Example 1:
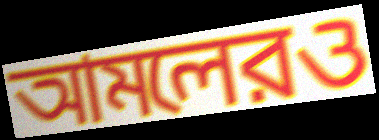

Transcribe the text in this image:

আমলেরও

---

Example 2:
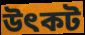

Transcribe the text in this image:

উৎকট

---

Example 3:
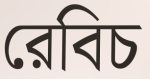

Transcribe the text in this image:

রেবিচ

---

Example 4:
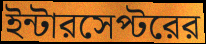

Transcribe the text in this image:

ইন্টারসেপ্টরের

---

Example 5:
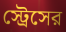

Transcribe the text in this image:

স্ট্রেসের